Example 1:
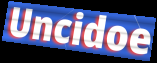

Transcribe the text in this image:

Uncidoe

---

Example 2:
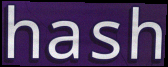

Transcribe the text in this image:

hash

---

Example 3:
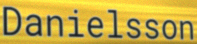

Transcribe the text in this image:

Danielsson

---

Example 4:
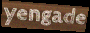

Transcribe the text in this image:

yengade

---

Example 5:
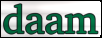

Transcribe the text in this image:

daam